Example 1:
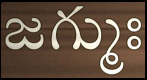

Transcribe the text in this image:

జగ్ముః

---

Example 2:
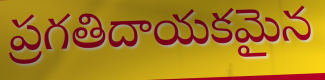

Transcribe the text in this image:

ప్రగతిదాయకమైన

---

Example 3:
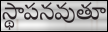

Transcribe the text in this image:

స్థాపనవుతూ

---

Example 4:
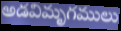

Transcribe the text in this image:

అడవిమృగములు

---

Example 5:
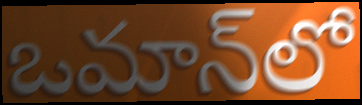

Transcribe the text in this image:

ఒమాన్‌లో